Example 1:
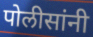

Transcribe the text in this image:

पोलीसांनी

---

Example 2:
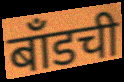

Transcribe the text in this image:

बाँडची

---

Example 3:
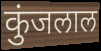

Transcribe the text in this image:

कुंजलाल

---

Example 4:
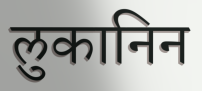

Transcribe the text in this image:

लुकानिन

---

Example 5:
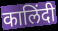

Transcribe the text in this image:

कालिंदी